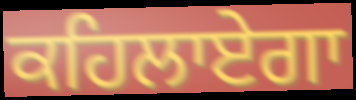
ਕਹਿਲਾਏਗਾ